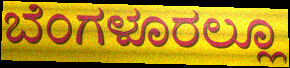
ಬೆಂಗಳೂರಲ್ಲೂ